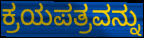
ಕ್ರಯಪತ್ರವನ್ನು